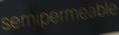
semipermeable